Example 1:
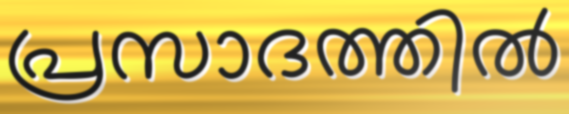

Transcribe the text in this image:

പ്രസാദത്തിൽ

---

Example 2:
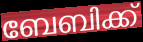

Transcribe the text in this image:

ബേബിക്ക്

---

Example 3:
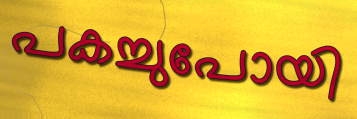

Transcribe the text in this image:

പകച്ചുപോയി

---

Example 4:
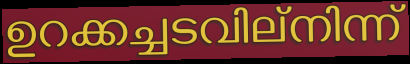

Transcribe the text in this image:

ഉറക്കച്ചടവില്നിന്ന്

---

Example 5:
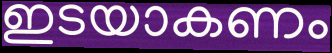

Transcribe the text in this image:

ഇടയാകണം